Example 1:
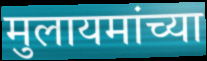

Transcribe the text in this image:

मुलायमांच्या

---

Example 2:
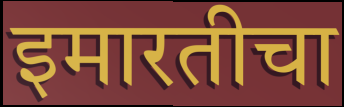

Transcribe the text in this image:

इमारतीचा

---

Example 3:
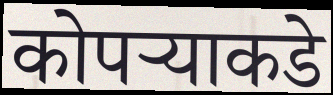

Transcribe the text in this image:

कोपऱ्याकडे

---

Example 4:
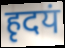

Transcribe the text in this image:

हृदयं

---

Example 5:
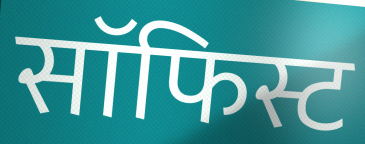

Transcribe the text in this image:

सॉफिस्ट